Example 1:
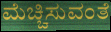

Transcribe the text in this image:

ಮೆಚ್ಚಿಸುವಂತೆ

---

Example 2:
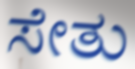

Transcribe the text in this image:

ಸೇತು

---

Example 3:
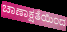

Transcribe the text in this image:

ಚಾಣಾಕ್ಷತೆಯಿಂದ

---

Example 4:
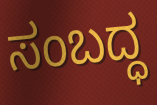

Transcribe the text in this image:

ಸಂಬದ್ಧ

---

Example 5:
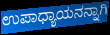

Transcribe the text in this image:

ಉಪಾಧ್ಯಾಯನನ್ನಾಗಿ